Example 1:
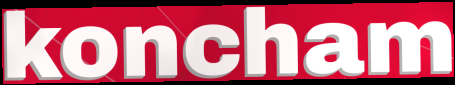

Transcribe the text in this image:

koncham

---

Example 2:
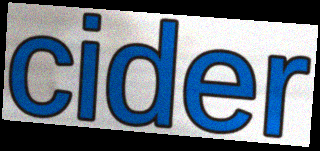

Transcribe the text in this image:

cider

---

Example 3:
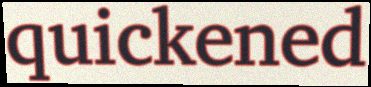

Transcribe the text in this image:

quickened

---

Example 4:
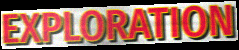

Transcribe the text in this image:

EXPLORATION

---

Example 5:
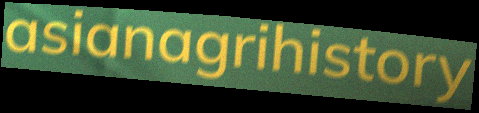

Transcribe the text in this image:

asianagrihistory